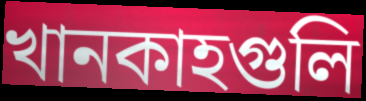
খানকাহগুলি